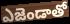
ఎజెండాతో